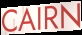
CAIRN